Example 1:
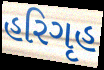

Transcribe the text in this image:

હરિગૃહ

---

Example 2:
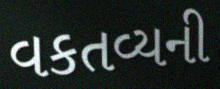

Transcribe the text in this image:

વકતવ્યની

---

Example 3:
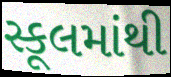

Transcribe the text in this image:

સ્કૂલમાંથી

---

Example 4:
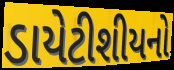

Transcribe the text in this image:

ડાયેટીશીયનો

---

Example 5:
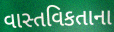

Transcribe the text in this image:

વાસ્તવિકતાના